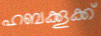
ഹബക്കൂക്ക്